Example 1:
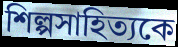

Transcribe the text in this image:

শিল্পসাহিত্যকে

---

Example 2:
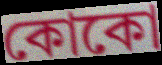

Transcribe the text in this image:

কোকো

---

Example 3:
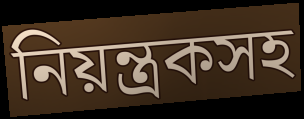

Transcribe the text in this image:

নিয়ন্ত্রকসহ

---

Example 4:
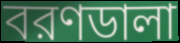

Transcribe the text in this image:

বরণডালা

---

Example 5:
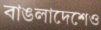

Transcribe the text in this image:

বাঙলাদেশেও